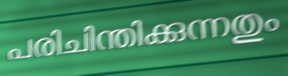
പരിചിന്തിക്കുന്നതും